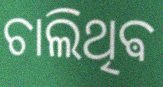
ଚାଲିଥିଵ